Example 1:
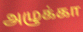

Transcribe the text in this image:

அழுக்கா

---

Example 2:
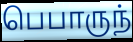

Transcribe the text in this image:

பெபாருந்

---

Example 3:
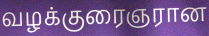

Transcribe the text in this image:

வழக்குரைஞரான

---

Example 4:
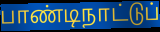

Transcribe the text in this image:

பாண்டிநாட்டுப்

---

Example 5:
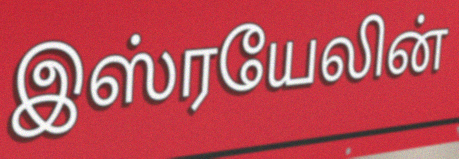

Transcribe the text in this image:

இஸ்ரயேலின்